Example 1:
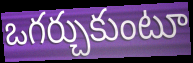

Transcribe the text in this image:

ఒగర్చుకుంటూ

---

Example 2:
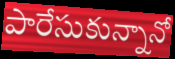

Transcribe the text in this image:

పారేసుకున్నానో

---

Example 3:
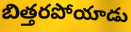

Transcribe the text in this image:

బిత్తరపోయాడు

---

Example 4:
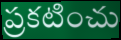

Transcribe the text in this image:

ప్రకటించు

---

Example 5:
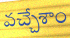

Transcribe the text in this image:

వచ్చేశాం